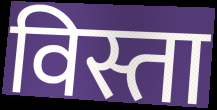
विस्ता